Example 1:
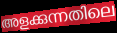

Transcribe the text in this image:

അളക്കുന്നതിലെ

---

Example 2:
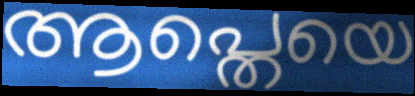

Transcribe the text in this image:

ആപ്തെയെ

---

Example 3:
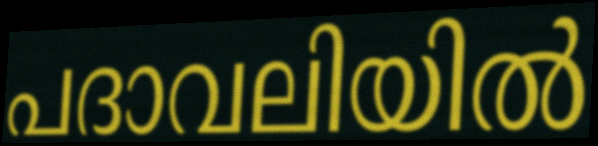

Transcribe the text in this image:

പദാവലിയിൽ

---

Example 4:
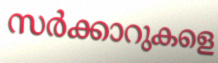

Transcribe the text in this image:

സർക്കാറുകളെ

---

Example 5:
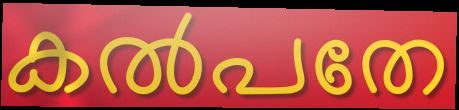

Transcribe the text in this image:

കൽപതേ